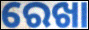
ରେଖା